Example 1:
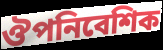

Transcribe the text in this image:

ঔপনিবেশিক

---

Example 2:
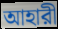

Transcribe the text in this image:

আহারী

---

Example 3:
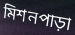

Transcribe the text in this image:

মিশনপাড়া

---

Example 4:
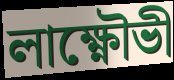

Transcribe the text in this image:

লাক্ষ্ণৌভী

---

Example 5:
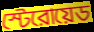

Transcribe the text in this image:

স্টেরোয়েড